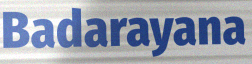
Badarayana